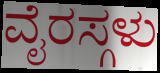
ವೈರಸ್ಗಳು